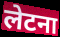
लेटना